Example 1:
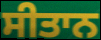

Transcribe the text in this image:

ਸੀਤਾਨ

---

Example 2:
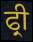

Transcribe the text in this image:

ਫ੍ਰੀ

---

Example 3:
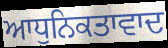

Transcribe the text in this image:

ਆਧੁਨਿਕਤਾਵਾਦ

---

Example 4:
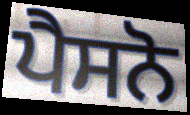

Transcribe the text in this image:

ਪੈਸਨੋ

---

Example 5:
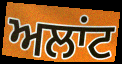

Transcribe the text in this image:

ਅਲਾਂਟ